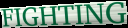
FIGHTING